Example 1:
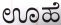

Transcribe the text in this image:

ಊಹೆ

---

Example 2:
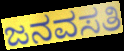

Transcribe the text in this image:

ಜನವಸತಿ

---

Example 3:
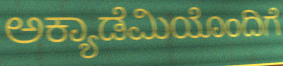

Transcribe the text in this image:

ಅಕ್ಯಾಡೆಮಿಯೊಂದಿಗೆ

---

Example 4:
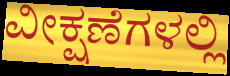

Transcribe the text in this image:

ವೀಕ್ಷಣೆಗಳಲ್ಲಿ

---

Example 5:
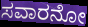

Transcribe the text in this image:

ಸವಾರನೋ